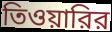
তিওয়ারির